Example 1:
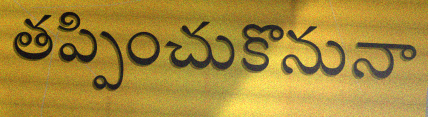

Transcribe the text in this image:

తప్పించుకొనునా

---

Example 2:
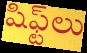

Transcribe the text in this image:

షిఫ్ట్‌లు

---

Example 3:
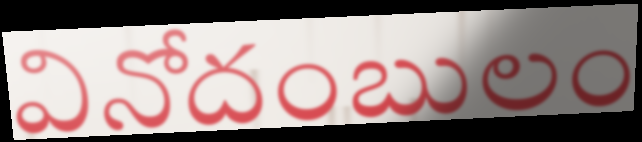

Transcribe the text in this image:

వినోదంబులం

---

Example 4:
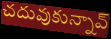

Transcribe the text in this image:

చదువుకున్నావ్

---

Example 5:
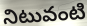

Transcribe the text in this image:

నిటువంటి